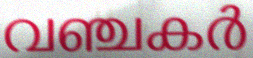
വഞ്ചകർ